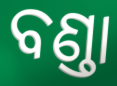
ବଣ୍ଡା